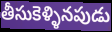
తీసుకెళ్ళినపుడు